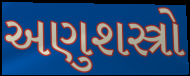
અણુશસ્ત્રો